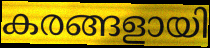
കരങ്ങളായി